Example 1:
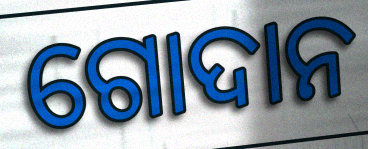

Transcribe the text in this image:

ଗୋଦାନ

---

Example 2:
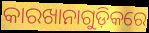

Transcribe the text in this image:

କାରଖାନାଗୁଡ଼ିକରେ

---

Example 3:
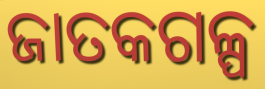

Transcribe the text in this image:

ଜାତକଗଳ୍ପ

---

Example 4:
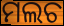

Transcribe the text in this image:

ମଲଚ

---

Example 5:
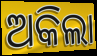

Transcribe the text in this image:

ଅକିଲା